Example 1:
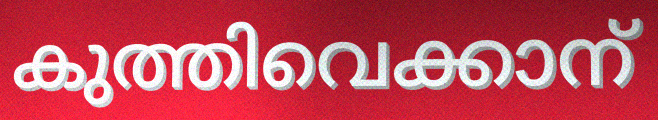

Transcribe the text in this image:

കുത്തിവെക്കാന്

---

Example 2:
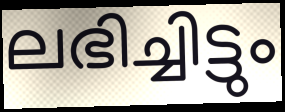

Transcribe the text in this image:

ലഭിച്ചിട്ടും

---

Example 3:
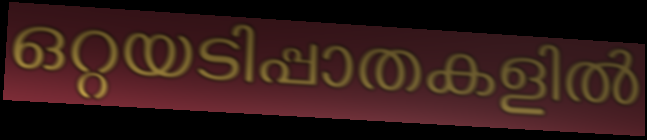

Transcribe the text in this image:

ഒറ്റയടിപ്പാതകളിൽ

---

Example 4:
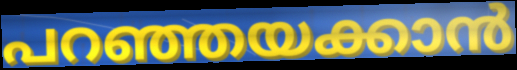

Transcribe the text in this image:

പറഞ്ഞയക്കാൻ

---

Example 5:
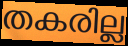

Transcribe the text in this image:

തകരില്ല